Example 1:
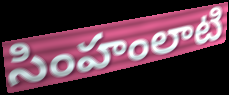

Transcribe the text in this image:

సింహంలాటి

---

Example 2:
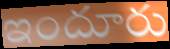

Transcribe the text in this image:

ఇందూరు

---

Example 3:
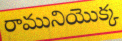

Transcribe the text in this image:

రామునియొక్క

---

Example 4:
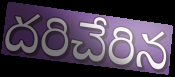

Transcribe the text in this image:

దరిచేరిన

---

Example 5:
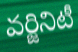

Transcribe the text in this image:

వర్జినిటీ